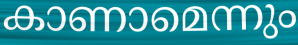
കാണാമെന്നും